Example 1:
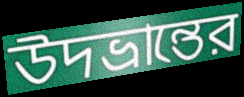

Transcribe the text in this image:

উদভ্রান্তের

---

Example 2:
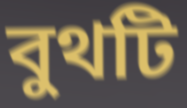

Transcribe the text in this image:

বুথটি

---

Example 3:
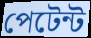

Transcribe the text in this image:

পেটেন্ট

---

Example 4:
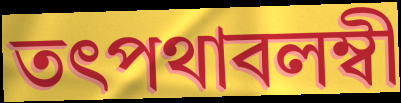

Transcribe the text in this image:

তৎপথাবলম্বী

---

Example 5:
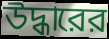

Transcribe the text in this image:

উদ্ধারের